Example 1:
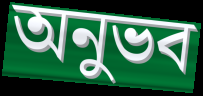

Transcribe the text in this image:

অনুভব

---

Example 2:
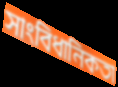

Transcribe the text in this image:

সাংবিধানিকতা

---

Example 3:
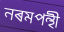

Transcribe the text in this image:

নৰমপন্থী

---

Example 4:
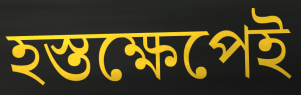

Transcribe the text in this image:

হস্তক্ষেপেই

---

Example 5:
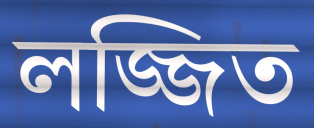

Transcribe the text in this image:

লজ্জিত